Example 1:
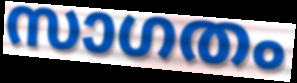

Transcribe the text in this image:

സാഗതം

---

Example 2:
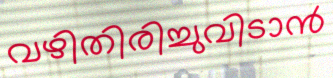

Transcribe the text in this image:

വഴിതിരിച്ചുവിടാൻ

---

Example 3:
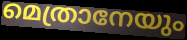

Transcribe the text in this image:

മെത്രാനേയും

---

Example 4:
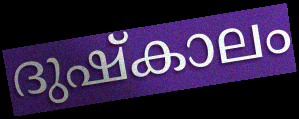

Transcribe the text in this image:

ദുഷ്കാലം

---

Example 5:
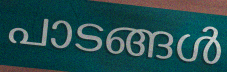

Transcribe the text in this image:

പാടങ്ങൾ